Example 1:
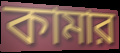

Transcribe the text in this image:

কামার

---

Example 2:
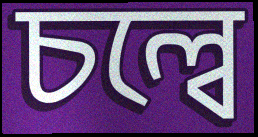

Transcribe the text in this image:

চল্বে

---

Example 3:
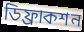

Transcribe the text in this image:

ডিফ্রাকশন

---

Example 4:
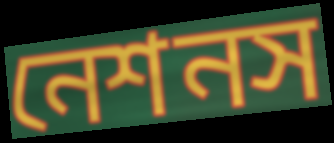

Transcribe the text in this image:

নেশনস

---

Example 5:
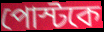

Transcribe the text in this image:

পোস্টকে